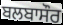
ਬਲਬਾਸੌਰ